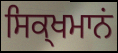
ਸਿਕ੍ਖਮਾਨਂ